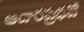
ఆచారప్రభవో